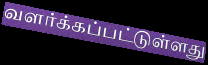
வளர்க்கப்பட்டுள்ளது